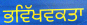
ਭਵਿੱਖਵਕਤਾ